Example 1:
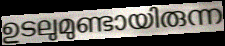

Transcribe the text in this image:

ഉടലുമുണ്ടായിരുന്ന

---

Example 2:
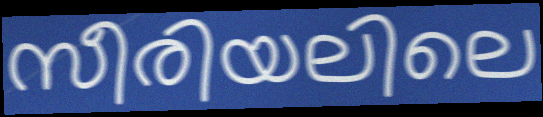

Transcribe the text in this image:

സീരിയലിലെ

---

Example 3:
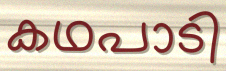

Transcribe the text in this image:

കഥപാടി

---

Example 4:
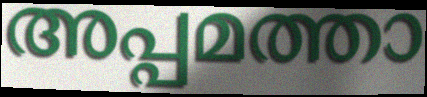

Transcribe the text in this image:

അപ്പമത്താ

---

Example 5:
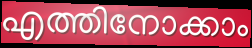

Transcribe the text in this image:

എത്തിനോക്കാം